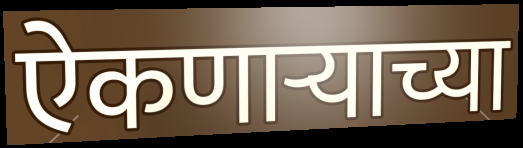
ऐकणाऱ्याच्या